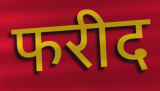
फरीद